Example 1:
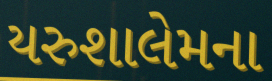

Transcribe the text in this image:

યરુશાલેમના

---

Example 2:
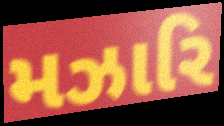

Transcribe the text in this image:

મઝારિ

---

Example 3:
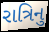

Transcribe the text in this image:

રાત્રિનુ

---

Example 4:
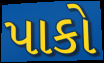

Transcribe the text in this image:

પાકો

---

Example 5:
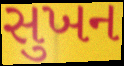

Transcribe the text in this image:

સુખન